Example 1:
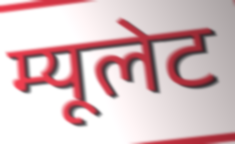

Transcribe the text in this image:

म्यूलेट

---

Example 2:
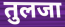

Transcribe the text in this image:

तुलजा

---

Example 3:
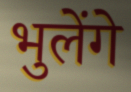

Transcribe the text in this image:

भुलेंगे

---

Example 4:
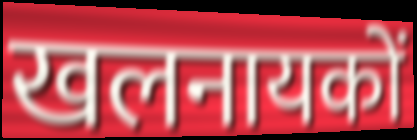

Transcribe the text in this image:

खलनायकों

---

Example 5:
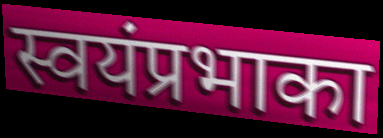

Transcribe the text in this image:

स्वयंप्रभाका